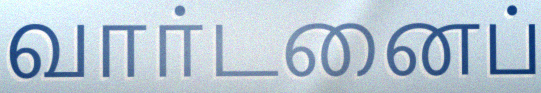
வார்டனைப்